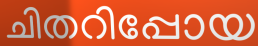
ചിതറിപ്പോയ